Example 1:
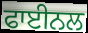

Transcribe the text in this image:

ਫਾਈਨਲ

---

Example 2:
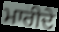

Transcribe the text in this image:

ਮਾਰੀਦੇ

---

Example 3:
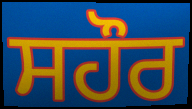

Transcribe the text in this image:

ਸਹੌਰ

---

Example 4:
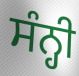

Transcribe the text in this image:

ਸੰਨ੍ਹ੍ਹੀ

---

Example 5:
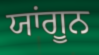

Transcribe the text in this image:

ਯਾਂਗੂਨ